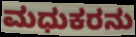
ಮಧುಕರನು